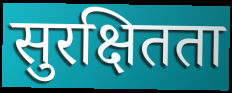
सुरक्षितता